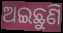
ଅଇଛୁଣି